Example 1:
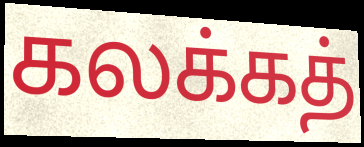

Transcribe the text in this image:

கலக்கத்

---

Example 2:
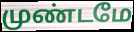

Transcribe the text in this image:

முண்டமே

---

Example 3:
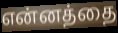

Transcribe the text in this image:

என்னத்தை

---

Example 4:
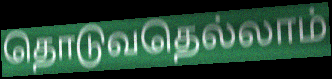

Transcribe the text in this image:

தொடுவதெல்லாம்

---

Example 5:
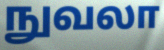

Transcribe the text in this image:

நுவலா